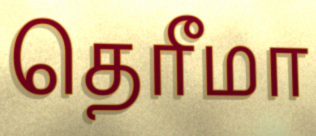
தெரீமா